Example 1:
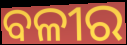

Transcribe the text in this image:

ବଳୀର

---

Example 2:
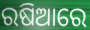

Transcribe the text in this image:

ରଷିଆରେ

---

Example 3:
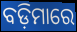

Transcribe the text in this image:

ବଡ଼ିମାରେ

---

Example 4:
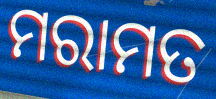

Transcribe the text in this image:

ମରାମତ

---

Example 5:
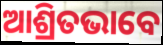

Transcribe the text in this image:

ଆଶ୍ରିତଭାବେ